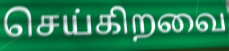
செய்கிறவை